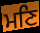
ਮਣਿ